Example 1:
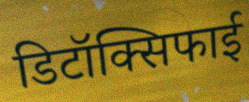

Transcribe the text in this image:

डिटॉक्सिफाई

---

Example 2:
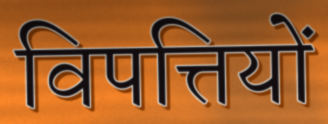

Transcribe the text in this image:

विपत्तियों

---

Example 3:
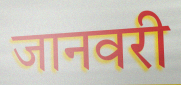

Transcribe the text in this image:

जानवरी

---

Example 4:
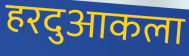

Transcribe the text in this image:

हरदुआकला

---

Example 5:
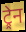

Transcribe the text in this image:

ट्र्रेन